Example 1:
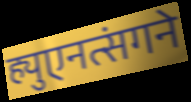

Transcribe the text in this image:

ह्युएनत्संगने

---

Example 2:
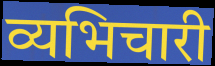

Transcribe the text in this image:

व्यभिचारी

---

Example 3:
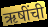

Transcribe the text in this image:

ऋषींची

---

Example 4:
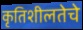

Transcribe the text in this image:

कृतिशीलतेचे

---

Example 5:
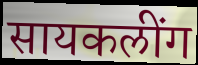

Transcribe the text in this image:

सायकलींग